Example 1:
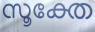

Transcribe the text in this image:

സൂക്തേ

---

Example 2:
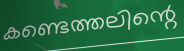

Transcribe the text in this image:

കണ്ടെത്തലിന്റെ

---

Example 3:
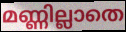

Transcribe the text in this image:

മണ്ണില്ലാതെ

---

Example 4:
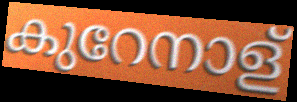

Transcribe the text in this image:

കുറേനാള്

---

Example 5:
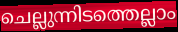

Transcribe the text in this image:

ചെല്ലുന്നിടത്തെല്ലാം